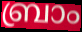
ബ്രാം